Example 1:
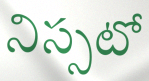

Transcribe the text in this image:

నిస్సటో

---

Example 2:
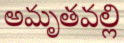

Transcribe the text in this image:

అమృతవల్లి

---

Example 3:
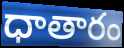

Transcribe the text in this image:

ధాతారం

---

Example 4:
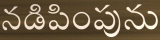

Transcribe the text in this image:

నడిపింపును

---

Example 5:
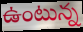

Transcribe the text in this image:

ఉంటున్న